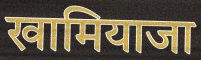
खामियाजा